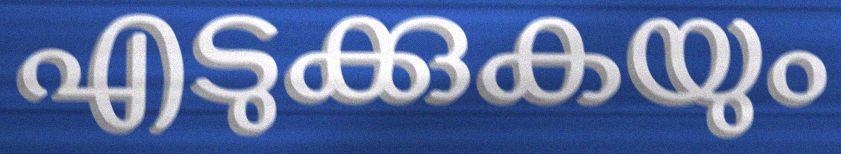
എടുക്കുകയും